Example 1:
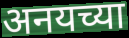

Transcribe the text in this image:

अनयच्या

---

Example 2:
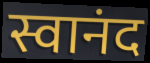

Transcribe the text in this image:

स्वानंद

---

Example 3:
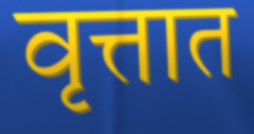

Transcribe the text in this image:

वृत्तात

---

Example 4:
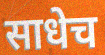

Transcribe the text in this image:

साधेच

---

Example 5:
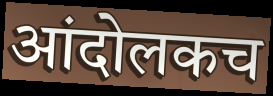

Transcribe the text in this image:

आंदोलकच